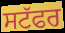
ਸਟੱਫਰ